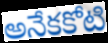
అనేకకోటి